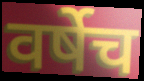
वर्षेच